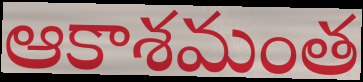
ఆకాశమంత